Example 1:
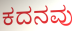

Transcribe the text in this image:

ಕದನವು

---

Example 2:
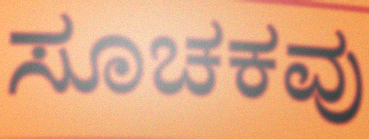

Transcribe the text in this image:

ಸೂಚಕವು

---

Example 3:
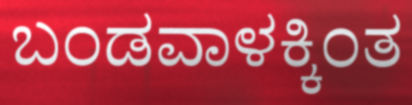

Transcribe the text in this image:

ಬಂಡವಾಳಕ್ಕಿಂತ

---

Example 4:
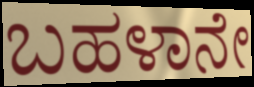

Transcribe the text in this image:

ಬಹಳಾನೇ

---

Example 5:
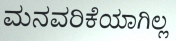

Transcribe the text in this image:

ಮನವರಿಕೆಯಾಗಿಲ್ಲ